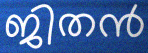
ജിതൻ